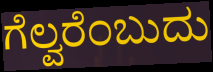
ಗೆಲ್ವರೆಂಬುದು